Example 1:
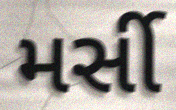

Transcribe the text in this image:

મર્સી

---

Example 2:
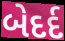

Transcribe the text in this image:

બેદર્દ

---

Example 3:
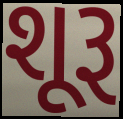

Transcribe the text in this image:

શૂરૂ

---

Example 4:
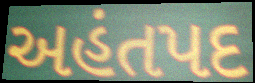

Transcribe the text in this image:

અહંતપદ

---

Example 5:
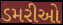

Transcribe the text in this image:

ડમરીઓ